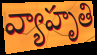
వ్యాహృతి